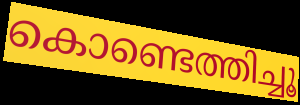
കൊണ്ടെത്തിച്ചൂ